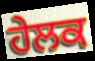
ਹੇਲਕ